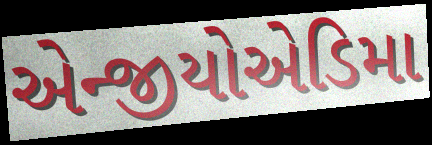
એન્જીયોએડિમા